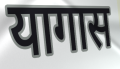
यागास